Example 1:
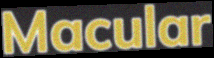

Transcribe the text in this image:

Macular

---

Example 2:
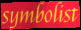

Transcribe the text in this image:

symbolist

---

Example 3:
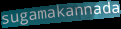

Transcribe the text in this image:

sugamakannada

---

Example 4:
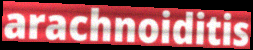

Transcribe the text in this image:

arachnoiditis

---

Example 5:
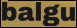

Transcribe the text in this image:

balgu